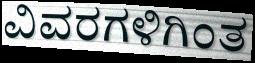
ವಿವರಗಳಿಗಿಂತ